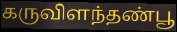
கருவிளந்தண்பூ